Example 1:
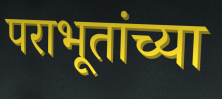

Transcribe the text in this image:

पराभूतांच्या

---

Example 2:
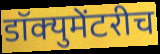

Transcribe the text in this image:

डॉक्युमेंटरीच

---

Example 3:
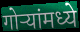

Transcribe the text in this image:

गोऱ्यांमध्ये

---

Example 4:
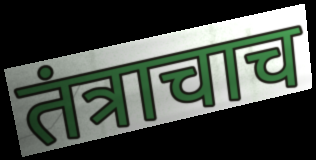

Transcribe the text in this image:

तंत्राचाच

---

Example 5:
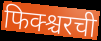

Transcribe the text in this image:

फिक्श्चरची